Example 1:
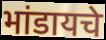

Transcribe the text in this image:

भांडायचे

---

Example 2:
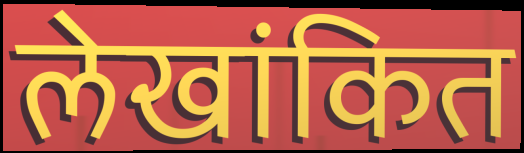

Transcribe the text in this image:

लेखांकित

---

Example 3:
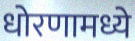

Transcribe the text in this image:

धोरणामध्ये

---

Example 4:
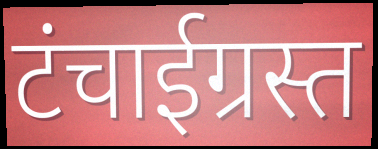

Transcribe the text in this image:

टंचाईग्रस्त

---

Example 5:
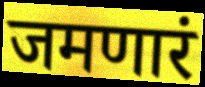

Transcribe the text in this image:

जमणारं